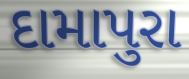
દામાપુરા